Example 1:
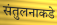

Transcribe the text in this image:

संतुलनाकडे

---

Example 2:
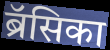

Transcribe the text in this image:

ब्रॅसिका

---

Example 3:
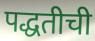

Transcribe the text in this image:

पद्धतीची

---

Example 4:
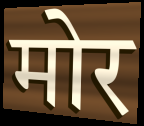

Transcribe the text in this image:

मोर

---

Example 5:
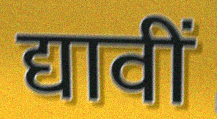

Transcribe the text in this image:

द्यावीं